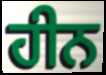
ਹੀਨ